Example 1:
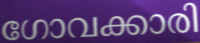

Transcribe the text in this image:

ഗോവക്കാരി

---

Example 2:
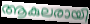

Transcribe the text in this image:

ആകുലരായി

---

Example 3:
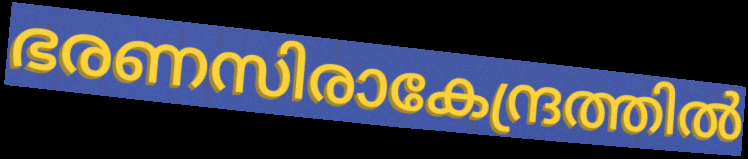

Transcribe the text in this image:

ഭരണസിരാകേന്ദ്രത്തിൽ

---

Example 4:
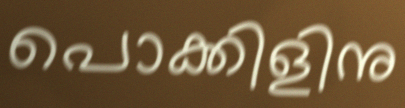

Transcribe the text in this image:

പൊക്കിളിനു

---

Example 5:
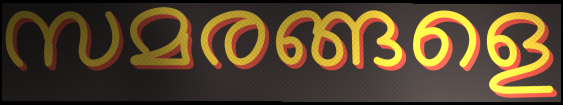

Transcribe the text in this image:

സമരങ്ങളെ